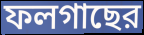
ফলগাছের